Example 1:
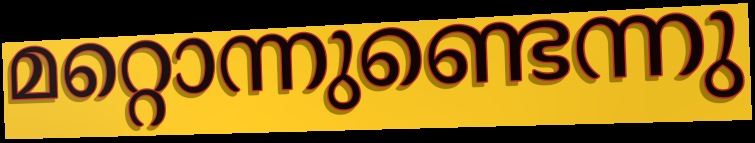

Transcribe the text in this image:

മറ്റൊന്നുണ്ടെന്നു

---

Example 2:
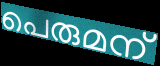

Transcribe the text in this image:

പെരുമന്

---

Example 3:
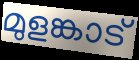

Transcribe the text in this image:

മുളങ്കാട്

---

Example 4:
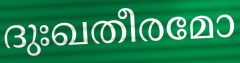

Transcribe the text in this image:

ദുഃഖതീരമോ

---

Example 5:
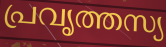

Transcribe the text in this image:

പ്രവൃത്തസ്യ